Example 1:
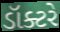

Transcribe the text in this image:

ડૉક્ટરે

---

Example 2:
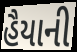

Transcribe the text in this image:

હૈયાની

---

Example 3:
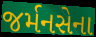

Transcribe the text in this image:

જર્મનસેના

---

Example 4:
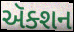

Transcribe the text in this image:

ઍક્શન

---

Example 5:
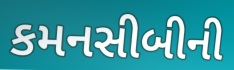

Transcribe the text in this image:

કમનસીબીની